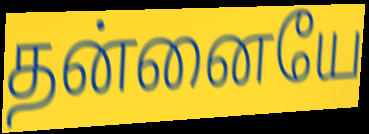
தன்னையே